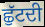
ਛੁੱਟਦੀ